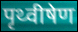
पृथ्वीषेण